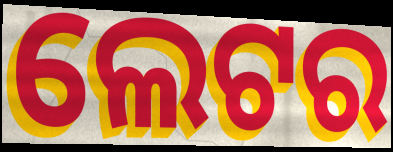
ଲେଟର